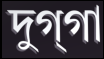
দুগ্‌গা